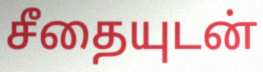
சீதையுடன்